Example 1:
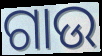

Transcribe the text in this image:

ଗାଉ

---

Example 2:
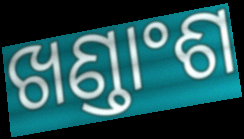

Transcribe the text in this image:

ଖଣ୍ଡାଂଶ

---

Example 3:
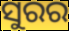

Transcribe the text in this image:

ସୁରର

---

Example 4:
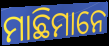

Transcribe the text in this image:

ମାଛିମାନେ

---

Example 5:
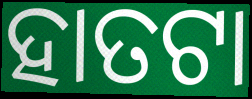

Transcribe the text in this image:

ହାତଟା